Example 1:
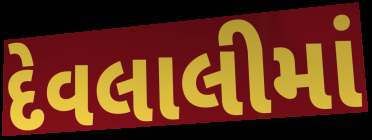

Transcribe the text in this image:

દેવલાલીમાં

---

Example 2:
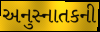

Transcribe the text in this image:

અનુસ્નાતકની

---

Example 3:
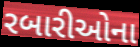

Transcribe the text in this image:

રબારીઓના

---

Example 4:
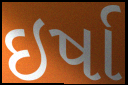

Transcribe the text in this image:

ઇર્ષા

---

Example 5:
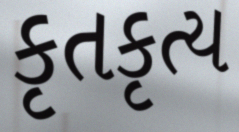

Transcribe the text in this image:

કૃતકૃત્ય